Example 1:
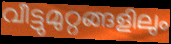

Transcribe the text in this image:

വീട്ടുമുറ്റങ്ങളിലും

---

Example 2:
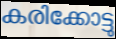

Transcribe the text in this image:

കരിക്കോട്ടു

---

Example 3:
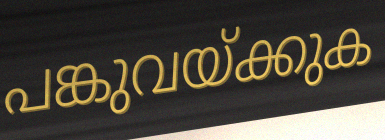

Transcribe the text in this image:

പങ്കുവയ്ക്കുക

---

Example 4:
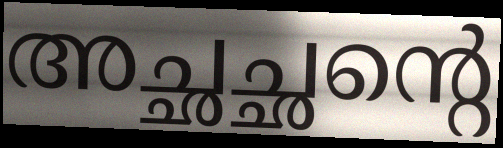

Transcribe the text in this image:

അച്ഛച്ഛന്റെ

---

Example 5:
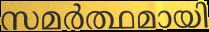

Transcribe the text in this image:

സമർത്ഥമായി